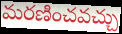
మరణించవచ్చు